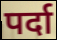
पर्दा